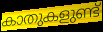
കാതുകളുണ്ട്